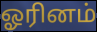
ஓரினம்